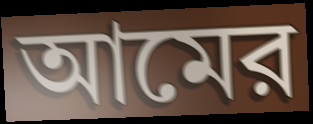
আমের